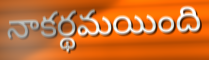
నాకర్థమయింది